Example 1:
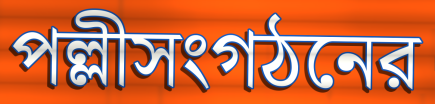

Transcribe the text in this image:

পল্লীসংগঠনের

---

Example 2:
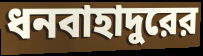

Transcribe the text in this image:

ধনবাহাদুরের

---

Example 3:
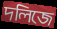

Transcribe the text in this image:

দলিজে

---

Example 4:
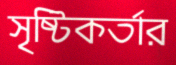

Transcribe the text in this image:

সৃষ্টিকর্তার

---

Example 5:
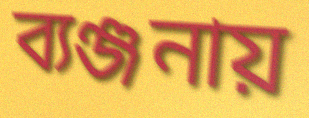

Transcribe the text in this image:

ব্যঞ্জনায়